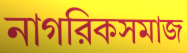
নাগরিকসমাজ